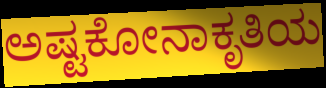
ಅಷ್ಟಕೋನಾಕೃತಿಯ